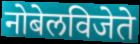
नोबेलविजेते